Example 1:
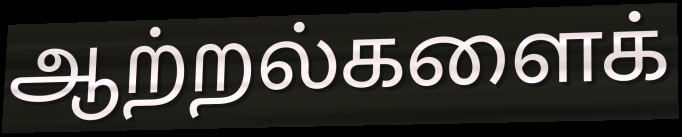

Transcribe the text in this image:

ஆற்றல்களைக்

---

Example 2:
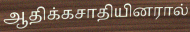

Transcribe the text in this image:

ஆதிக்கசாதியினரால்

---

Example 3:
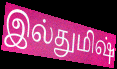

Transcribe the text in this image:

இல்துமிஷ்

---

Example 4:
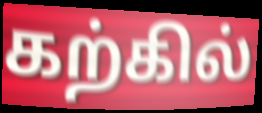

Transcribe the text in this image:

கற்கில்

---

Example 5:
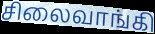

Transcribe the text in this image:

சிலைவாங்கி